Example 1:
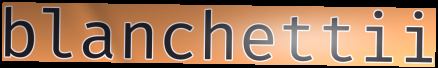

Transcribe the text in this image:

blanchettii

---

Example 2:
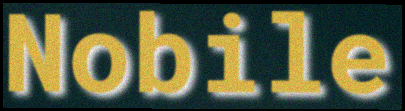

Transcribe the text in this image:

Nobile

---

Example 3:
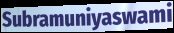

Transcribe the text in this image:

Subramuniyaswami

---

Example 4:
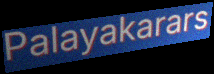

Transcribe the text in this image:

Palayakarars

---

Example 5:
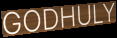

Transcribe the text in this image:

GODHULY